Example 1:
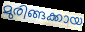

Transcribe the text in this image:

മുരിങ്ങക്കായ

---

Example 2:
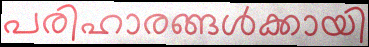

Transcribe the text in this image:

പരിഹാരങ്ങൾക്കായി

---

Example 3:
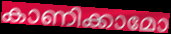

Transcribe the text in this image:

കാണിക്കാമോ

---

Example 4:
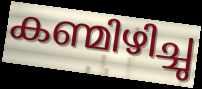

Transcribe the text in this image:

കണ്മിഴിച്ചു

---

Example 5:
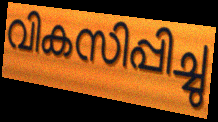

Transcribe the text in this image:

വികസിപ്പിച്ചു